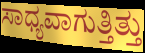
ಸಾಧ್ಯವಾಗುತ್ತಿತ್ತು